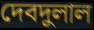
দেবদুলাল